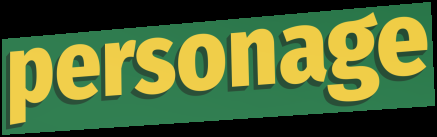
personage